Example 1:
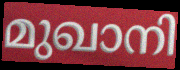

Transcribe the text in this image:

മുഖാനി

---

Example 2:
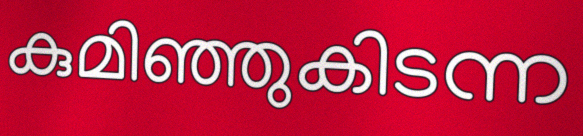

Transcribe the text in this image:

കുമിഞ്ഞുകിടന്ന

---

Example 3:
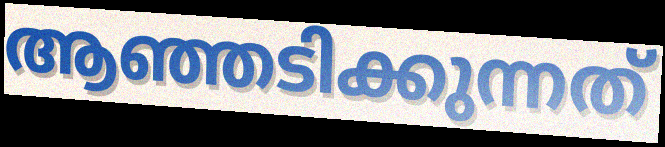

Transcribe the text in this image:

ആഞ്ഞടിക്കുന്നത്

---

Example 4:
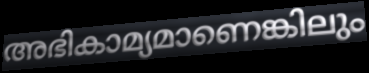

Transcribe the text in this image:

അഭികാമ്യമാണെങ്കിലും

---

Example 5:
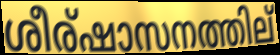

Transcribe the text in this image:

ശീര്ഷാസനത്തില്